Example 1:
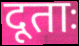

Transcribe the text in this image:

दूताः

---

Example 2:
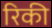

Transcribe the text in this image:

रिकी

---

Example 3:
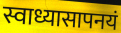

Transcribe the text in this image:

स्वाध्यासापनयं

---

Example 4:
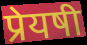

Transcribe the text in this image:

प्रेयषी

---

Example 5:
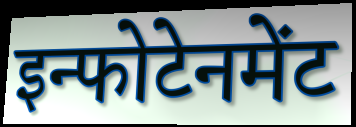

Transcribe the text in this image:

इन्फोटेनमेंट